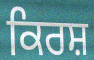
ਕਿਰਸ਼